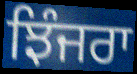
ਝਿੰਜਰਾ